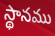
స్థానము